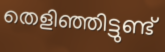
തെളിഞ്ഞിട്ടുണ്ട്